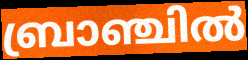
ബ്രാഞ്ചിൽ